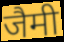
जैमी